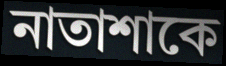
নাতাশাকে